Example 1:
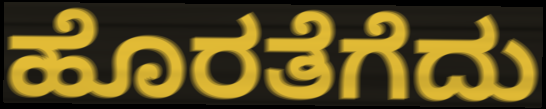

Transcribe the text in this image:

ಹೊರತೆಗೆದು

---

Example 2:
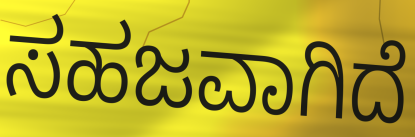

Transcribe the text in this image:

ಸಹಜವಾಗಿದೆ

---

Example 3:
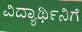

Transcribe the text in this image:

ವಿದ್ಯಾರ್ಥಿನಿಗೆ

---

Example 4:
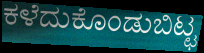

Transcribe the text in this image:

ಕಳೆದುಕೊಂಡುಬಿಟ್ಟ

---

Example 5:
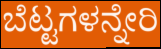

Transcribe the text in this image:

ಬೆಟ್ಟಗಳನ್ನೇರಿ